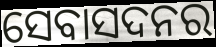
ସେବାସଦନର